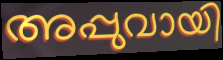
അപ്പുവായി